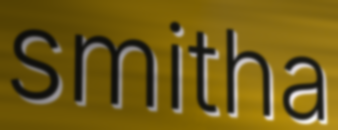
smitha